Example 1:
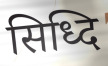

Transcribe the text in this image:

सिध्दि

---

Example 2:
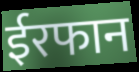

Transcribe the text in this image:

ईरफान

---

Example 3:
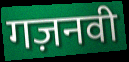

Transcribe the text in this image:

गज़नवी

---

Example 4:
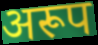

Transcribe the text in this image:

अरूप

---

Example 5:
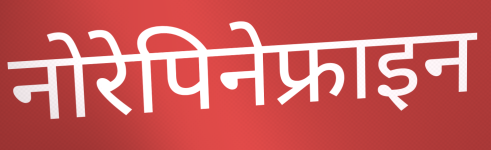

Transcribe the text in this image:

नोरेपिनेफ्राइन